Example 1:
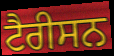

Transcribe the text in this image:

ਟੈਰੀਸਨ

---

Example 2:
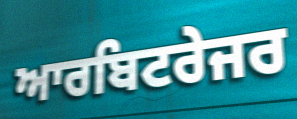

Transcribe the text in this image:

ਆਰਬਿਟਰੇਜਰ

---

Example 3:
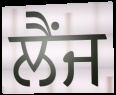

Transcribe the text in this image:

ਲੈਂਜ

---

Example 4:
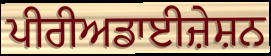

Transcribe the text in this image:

ਪੀਰੀਅਡਾਈਜ਼ੇਸ਼ਨ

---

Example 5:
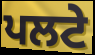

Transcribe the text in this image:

ਪਲਟੇ